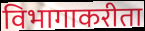
विभागाकरीता